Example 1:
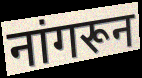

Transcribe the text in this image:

नांगरून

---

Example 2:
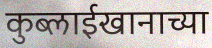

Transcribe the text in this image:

कुब्लाईखानाच्या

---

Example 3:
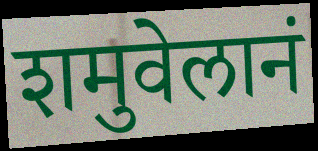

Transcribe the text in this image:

शमुवेलानं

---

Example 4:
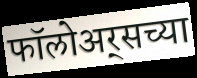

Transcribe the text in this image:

फॉलोअर्सच्या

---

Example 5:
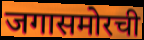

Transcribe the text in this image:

जगासमोरची